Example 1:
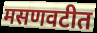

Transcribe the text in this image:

मसणवटीत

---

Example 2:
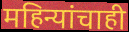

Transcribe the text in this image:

महिन्यांचाही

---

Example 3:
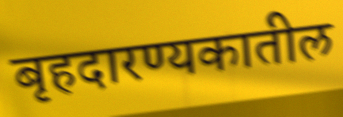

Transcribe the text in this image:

बृहदारण्यकातील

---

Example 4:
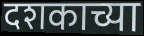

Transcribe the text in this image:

दशकाच्या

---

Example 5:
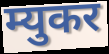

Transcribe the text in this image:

म्युकर